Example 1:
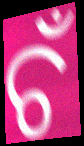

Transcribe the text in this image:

ଚଁ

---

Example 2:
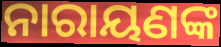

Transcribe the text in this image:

ନାରାୟଣଙ୍କ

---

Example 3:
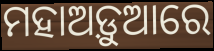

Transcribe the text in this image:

ମହାଅଡ଼ୁଆରେ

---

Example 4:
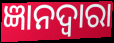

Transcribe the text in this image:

ଜ୍ଞାନଦ୍ଵାରା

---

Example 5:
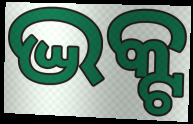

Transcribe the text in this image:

ଦ୍ଭକ୍ଟ